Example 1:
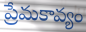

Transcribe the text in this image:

ప్రేమకావ్యం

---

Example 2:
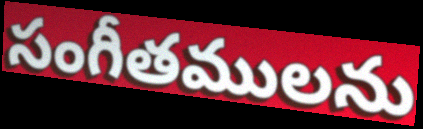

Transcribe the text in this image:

సంగీతములను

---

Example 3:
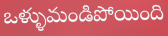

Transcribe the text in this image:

ఒళ్ళుమండిపోయింది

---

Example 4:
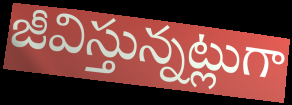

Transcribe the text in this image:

జీవిస్తున్నట్లుగా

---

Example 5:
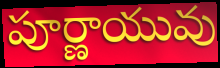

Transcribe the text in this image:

పూర్ణాయువు